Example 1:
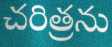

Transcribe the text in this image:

చరిత్రను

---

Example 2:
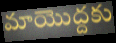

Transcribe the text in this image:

మాయొద్దకు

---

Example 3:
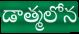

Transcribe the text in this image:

డాత్మలోన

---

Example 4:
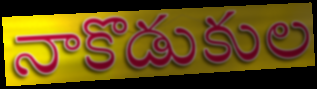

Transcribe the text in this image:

నాకొడుకుల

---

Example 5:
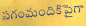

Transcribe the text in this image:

సగంమందికిపైగా